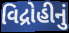
વિદ્રોહીનું